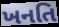
ખનતિ